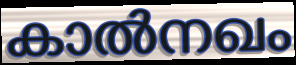
കാൽനഖം